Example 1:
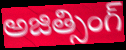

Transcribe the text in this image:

అజిత్సింగ్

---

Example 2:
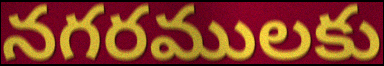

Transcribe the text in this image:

నగరములకు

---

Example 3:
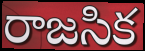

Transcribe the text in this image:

రాజసిక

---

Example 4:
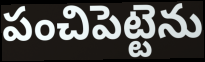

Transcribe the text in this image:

పంచిపెట్టెను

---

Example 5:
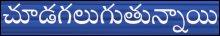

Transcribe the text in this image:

చూడగలుగుతున్నాయి